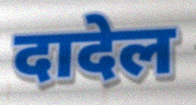
दादेल